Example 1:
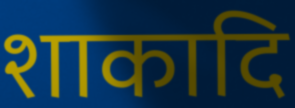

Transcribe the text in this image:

शाकादि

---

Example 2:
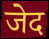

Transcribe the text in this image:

जेद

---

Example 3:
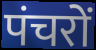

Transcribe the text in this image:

पंचरों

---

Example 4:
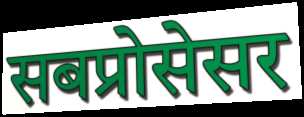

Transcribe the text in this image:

सबप्रोसेसर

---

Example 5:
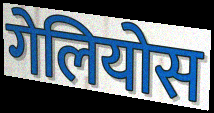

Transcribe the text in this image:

गेलियोस